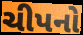
ચીપનો